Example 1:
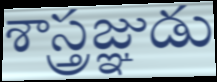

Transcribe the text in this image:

శాస్త్రజ్ఞుడు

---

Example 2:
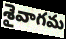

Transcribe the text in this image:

శైవాగమ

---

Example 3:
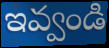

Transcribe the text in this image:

ఇవ్వండి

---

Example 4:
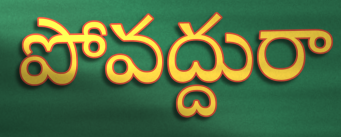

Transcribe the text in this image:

పోవద్దురా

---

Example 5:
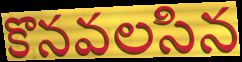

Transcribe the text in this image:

కొనవలసిన